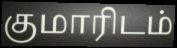
குமாரிடம்